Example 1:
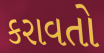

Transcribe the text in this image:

કરાવતો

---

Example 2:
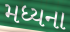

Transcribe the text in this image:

મધ્યના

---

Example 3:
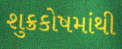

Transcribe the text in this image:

શુક્રકોષમાંથી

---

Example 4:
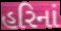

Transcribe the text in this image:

હરિનાં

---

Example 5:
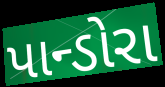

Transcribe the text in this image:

પાન્ડોરા